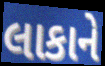
લાકાને